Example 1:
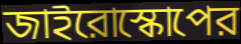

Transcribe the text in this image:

জাইরোস্কোপের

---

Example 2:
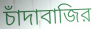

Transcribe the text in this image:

চাঁদাবাজির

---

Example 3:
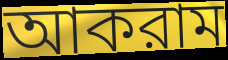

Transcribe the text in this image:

আকরাম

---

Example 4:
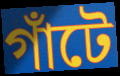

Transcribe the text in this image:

গাঁটে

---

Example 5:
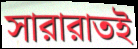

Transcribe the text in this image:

সারারাতই